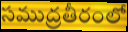
సముద్రతీరంలో